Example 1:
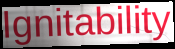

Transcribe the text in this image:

Ignitability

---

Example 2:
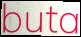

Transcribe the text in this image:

buta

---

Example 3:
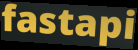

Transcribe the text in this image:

fastapi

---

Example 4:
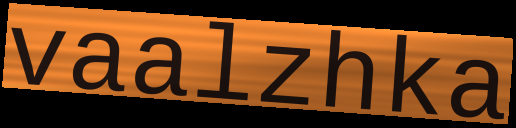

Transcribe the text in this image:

vaalzhka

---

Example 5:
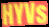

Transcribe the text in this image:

HYVs